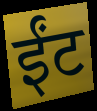
ईंट